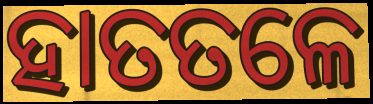
ହାତତଳେ